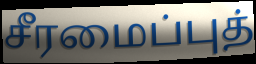
சீரமைப்புத்